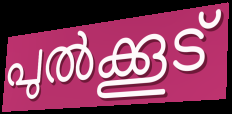
പുൽക്കൂട്